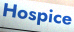
Hospice